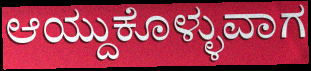
ಆಯ್ದುಕೊಳ್ಳುವಾಗ